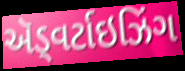
ઍડ્વર્ટાઇઝિંગ